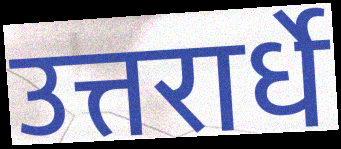
उत्तरार्धे